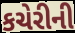
કચેરીની